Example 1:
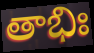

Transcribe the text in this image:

తాభిః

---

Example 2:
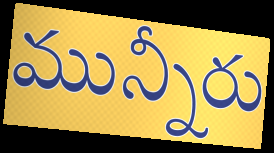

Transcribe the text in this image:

మున్నీరు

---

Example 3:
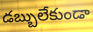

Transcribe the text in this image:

డబ్బులేకుండా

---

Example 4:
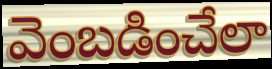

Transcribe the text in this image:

వెంబడించేలా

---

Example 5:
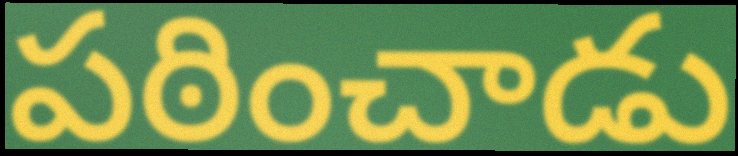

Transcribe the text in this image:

పఠించాడు